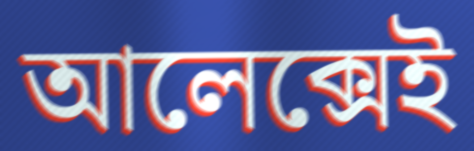
আলেক্সেই